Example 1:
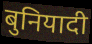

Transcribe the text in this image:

बुनियादी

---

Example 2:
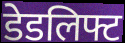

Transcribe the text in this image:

डेडलिफ्ट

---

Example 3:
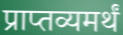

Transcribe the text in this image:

प्राप्तव्यमर्थं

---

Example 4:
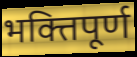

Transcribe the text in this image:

भक्तिपूर्ण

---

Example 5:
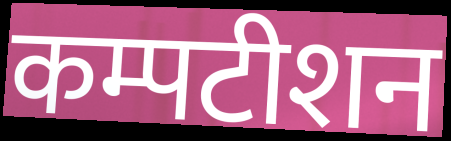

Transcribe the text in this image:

कम्पटीशन